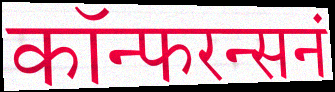
कॉन्फरन्सनं